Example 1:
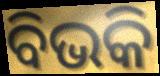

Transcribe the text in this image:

ବିଭକି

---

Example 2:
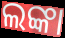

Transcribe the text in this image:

ଲଙ୍କା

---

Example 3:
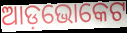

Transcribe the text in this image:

ଆଡ଼ଭୋକେଟ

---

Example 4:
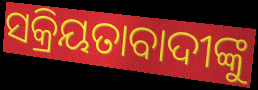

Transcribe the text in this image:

ସକ୍ରିୟତାବାଦୀଙ୍କୁ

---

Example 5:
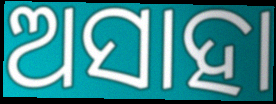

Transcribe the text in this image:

ଅସାହା